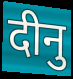
दीनु